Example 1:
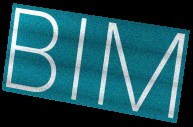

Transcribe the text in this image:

BIM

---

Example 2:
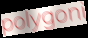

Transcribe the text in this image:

polygoni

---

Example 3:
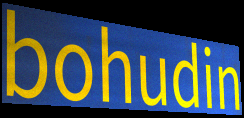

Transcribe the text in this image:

bohudin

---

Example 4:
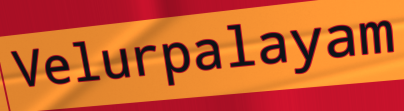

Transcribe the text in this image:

Velurpalayam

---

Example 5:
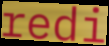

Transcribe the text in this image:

redi